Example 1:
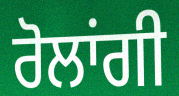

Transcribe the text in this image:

ਰੋਲਾਂਗੀ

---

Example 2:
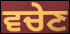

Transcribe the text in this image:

ਵਚੇਣ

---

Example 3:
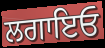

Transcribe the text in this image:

ਲਗਾਇਓ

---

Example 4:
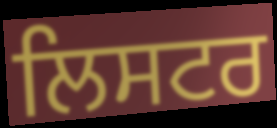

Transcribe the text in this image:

ਲਿਸਟਰ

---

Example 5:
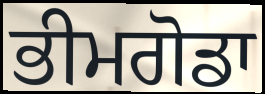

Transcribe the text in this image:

ਭੀਮਗੋਡਾ